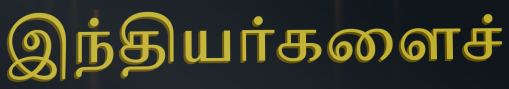
இந்தியர்களைச்